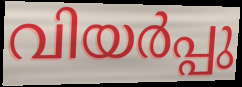
വിയർപ്പു